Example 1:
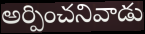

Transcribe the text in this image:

అర్పించనివాడు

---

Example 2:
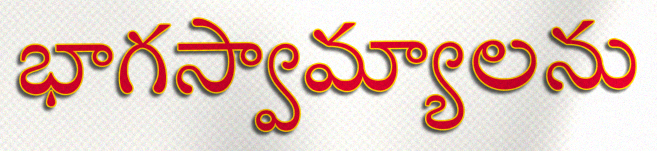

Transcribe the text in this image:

భాగస్వామ్యాలను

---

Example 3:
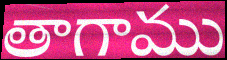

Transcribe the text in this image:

తాగాము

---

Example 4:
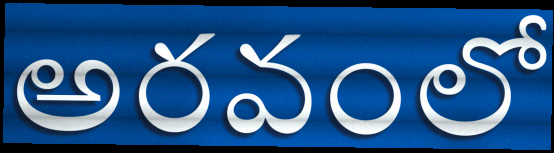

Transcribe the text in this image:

అరవంలో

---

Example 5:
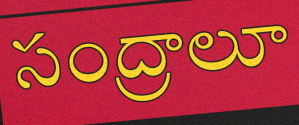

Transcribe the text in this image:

సంద్రాలూ